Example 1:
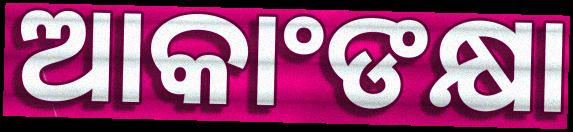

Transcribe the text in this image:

ଆକାଂଙକ୍ଷା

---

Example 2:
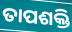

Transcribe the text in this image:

ତାପଶକ୍ତି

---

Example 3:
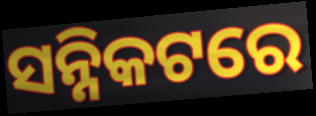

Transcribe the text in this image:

ସନ୍ନିକଟରେ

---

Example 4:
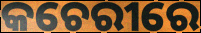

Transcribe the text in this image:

କଚେରୀରେ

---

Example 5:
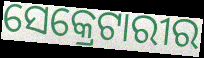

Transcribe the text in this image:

ସେକ୍ରେଟାରୀର